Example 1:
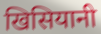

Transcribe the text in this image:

खिसियानी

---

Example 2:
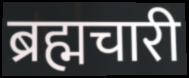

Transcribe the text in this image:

ब्रह्मचारी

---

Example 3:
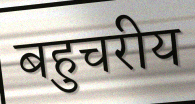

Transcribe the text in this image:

बहुचरीय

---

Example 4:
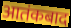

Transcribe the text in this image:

आतंकबाद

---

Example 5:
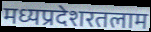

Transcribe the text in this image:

मध्यप्रदेशरतलाम